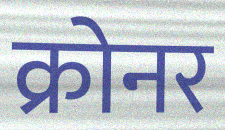
क्रोनर